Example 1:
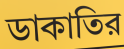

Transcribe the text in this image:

ডাকাতির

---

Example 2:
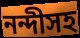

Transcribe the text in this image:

নন্দীসহ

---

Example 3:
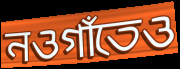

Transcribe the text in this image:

নওগাঁতেও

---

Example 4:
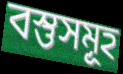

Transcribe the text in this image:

বস্তুসমূহ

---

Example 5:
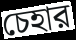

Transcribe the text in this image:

চেহার